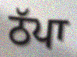
ਠੱਪਾ